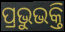
ପ୍ରଭୁଭକ୍ତି